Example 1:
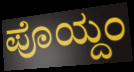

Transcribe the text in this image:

ಪೊಯ್ದಂ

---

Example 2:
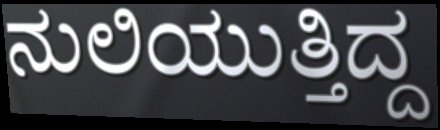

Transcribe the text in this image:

ನುಲಿಯುತ್ತಿದ್ದ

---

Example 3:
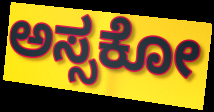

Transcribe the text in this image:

ಅಸ್ಸಕೋ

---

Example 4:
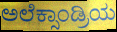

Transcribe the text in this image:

ಅಲೆಕ್ಸಾಂಡ್ರಿಯ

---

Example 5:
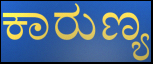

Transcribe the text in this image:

ಕಾರುಣ್ಯ